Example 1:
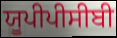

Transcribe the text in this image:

ਯੂਪੀਪੀਸੀਬੀ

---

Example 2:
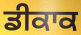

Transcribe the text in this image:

ਡੀਕਾਕ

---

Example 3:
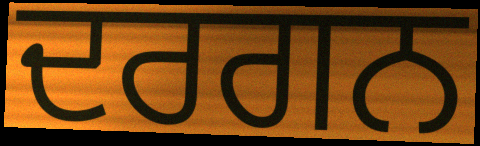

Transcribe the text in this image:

ਦਰਗਨ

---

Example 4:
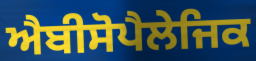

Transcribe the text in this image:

ਐਬੀਸੋਪੈਲੇਜਿਕ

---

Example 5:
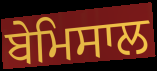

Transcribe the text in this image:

ਬੇਮਿਸਾਲ